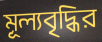
মূল্যবৃদ্ধির